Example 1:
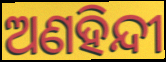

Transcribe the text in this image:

ଅଣହିନ୍ଦୀ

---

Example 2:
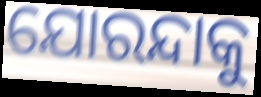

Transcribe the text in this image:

ଯୋରନ୍ଦାକୁ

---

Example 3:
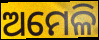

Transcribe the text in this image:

ଅମେଳି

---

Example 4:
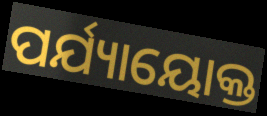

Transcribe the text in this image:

ପର୍ଯ୍ୟାୟୋକ୍ତ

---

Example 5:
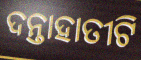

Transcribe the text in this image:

ଦନ୍ତାହାତୀଟି